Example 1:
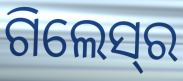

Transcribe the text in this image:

ଗିଲେସ୍‍ର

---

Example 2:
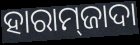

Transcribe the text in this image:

ହାରାମ୍‌ଜାଦା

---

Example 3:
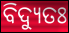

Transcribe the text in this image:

ବିଦ୍ୟୁତଃ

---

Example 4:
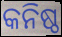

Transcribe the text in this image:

କନିଷ୍ଠ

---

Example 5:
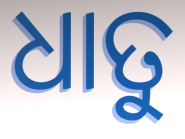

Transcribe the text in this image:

ଧାତୁ